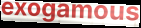
exogamous